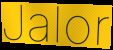
Jalor